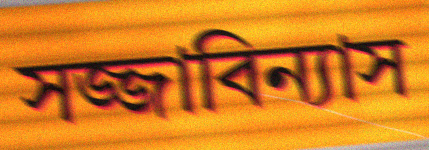
সজ্জাবিন্যাস